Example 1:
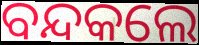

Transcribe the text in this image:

ବନ୍ଦକଲେ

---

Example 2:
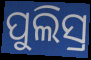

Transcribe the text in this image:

ପୁଲିସ୍ର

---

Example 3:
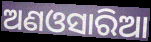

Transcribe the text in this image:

ଅଣଓସାରିଆ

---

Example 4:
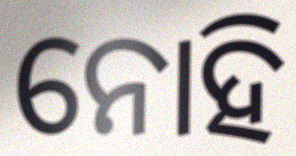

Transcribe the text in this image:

ନୋହି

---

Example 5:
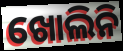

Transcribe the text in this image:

ଖୋଲିନି